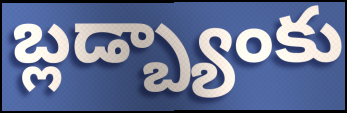
బ్లడ్బ్యాంకు